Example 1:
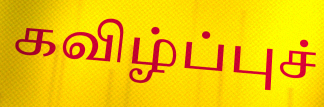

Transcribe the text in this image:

கவிழ்ப்புச்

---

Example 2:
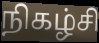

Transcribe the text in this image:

நிகழ்சி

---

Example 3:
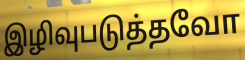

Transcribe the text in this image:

இழிவுபடுத்தவோ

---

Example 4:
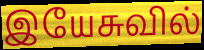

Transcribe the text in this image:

இயேசுவில்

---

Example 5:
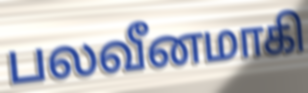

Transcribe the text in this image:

பலவீனமாகி